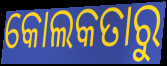
କୋଲକତାରୁ